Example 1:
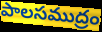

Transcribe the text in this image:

పాలసముద్రం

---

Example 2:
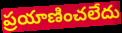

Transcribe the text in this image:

ప్రయాణించలేదు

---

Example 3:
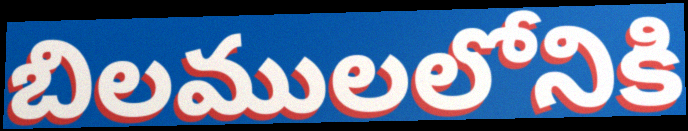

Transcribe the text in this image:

బిలములలోనికి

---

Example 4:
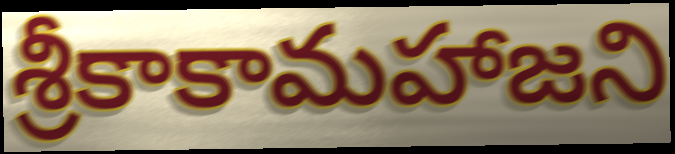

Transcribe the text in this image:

శ్రీకాకామహాజని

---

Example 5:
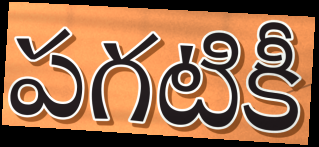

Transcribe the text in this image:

పగటికీ